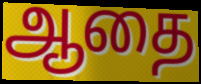
ஆதை